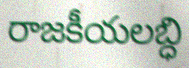
రాజకీయలబ్ధి